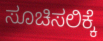
ಸೂಚಿಸಲಿಕ್ಕೆ